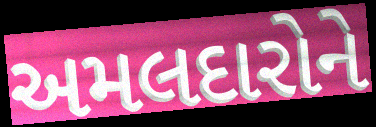
અમલદારોને